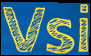
Vsi